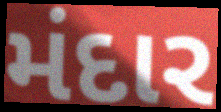
મંદાર